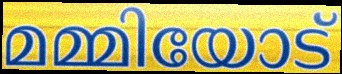
മമ്മിയോട്